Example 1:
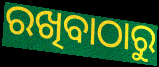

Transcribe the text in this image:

ରଖିବାଠାରୁ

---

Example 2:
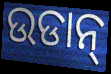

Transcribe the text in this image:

ଉଡାନ୍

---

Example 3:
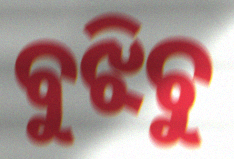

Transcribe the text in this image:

ବୁଝିଚୁ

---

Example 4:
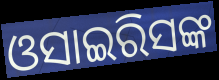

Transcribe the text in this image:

ଓସାଇରିସଙ୍କ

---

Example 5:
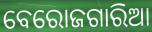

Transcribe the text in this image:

ବେରୋଜଗାରିଆ